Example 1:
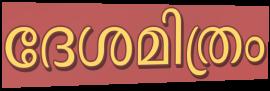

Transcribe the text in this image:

ദേശമിത്രം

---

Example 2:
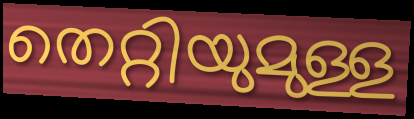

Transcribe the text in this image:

തെറ്റിയുമുള്ള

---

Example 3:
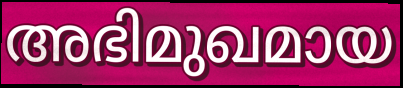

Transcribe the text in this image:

അഭിമുഖമായ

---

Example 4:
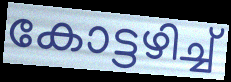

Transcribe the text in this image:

കോട്ടഴിച്ച്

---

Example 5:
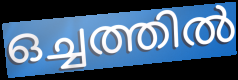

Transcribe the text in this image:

ഒച്ചത്തിൽ